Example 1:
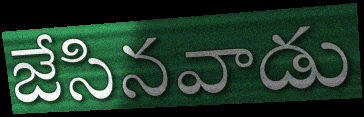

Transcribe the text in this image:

జేసినవాడు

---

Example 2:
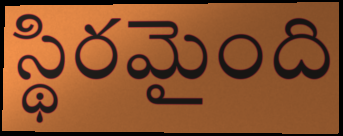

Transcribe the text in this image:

స్థిరమైంది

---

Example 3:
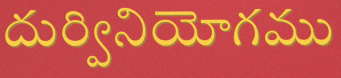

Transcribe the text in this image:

దుర్వినియోగము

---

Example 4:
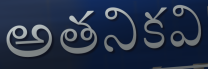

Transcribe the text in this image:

అతనికవి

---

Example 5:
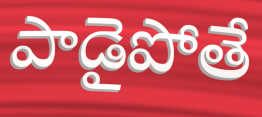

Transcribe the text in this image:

పాడైపోతే